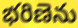
భరిణెను